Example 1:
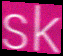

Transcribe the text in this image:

sk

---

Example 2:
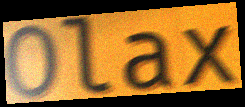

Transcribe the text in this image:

Olax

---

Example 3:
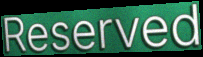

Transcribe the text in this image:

Reserved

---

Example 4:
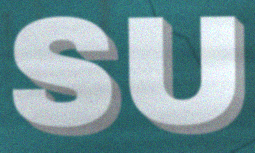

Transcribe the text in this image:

SU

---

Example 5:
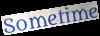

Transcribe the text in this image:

Sometime